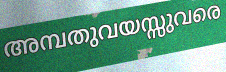
അമ്പതുവയസ്സുവരെ